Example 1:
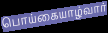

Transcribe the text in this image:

பொய்கையாழ்வார்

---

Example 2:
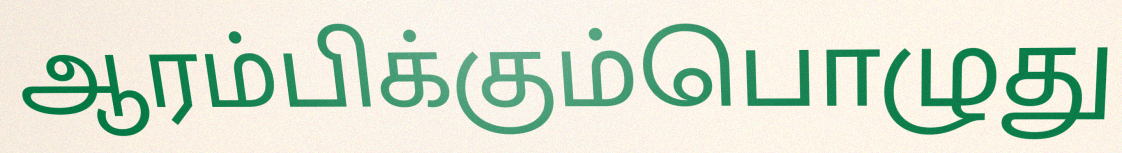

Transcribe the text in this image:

ஆரம்பிக்கும்பொழுது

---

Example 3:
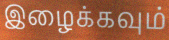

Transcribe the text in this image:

இழைக்கவும்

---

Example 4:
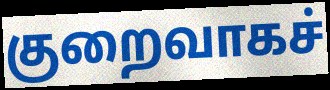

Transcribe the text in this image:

குறைவாகச்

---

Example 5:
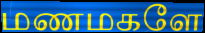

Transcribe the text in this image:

மணமகளே